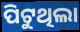
ପିଟୁଥିଲା